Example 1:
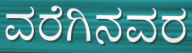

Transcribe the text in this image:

ವರೆಗಿನವರ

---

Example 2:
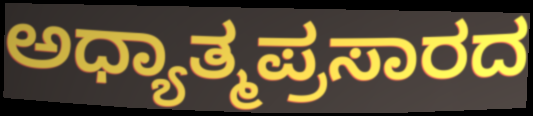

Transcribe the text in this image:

ಅಧ್ಯಾತ್ಮಪ್ರಸಾರದ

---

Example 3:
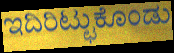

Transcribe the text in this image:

ಇದಿರಿಟ್ಟುಕೊಂಡು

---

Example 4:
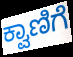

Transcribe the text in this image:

ಕ್ವಾಣಿಗೆ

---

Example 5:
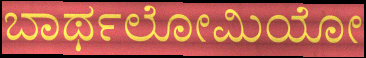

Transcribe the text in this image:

ಬಾರ್ಥಲೋಮಿಯೋ